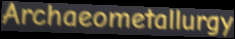
Archaeometallurgy